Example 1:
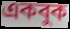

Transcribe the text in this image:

একবুক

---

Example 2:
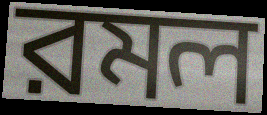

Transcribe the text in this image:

রমল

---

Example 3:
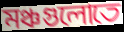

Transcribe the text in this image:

মঞ্চগুলোতে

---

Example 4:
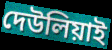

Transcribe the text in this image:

দেউলিয়াই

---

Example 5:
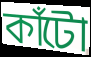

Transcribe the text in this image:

কাঁটো